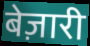
बेज़ारी